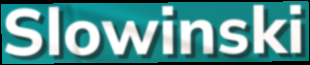
Slowinski